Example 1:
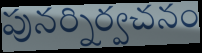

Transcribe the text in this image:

పునర్నిర్వచనం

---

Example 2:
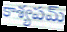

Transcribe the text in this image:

కాశ్యపమ్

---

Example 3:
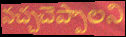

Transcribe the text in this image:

నచ్చచెప్పాలని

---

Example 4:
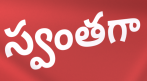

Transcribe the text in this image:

స్వంతగా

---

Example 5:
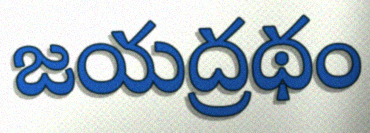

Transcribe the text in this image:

జయద్రథం